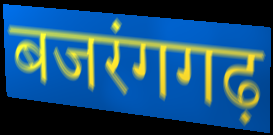
बजरंगगढ़